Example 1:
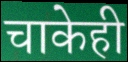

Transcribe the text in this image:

चाकेही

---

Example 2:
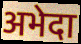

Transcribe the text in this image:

अभेदा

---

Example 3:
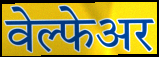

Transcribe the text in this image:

वेल्फेअर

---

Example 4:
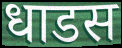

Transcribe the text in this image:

धाडस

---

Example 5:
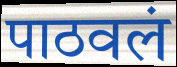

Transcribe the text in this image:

पाठवलं